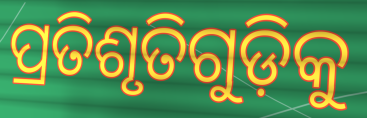
ପ୍ରତିଶୃତିଗୁଡ଼ିକୁ